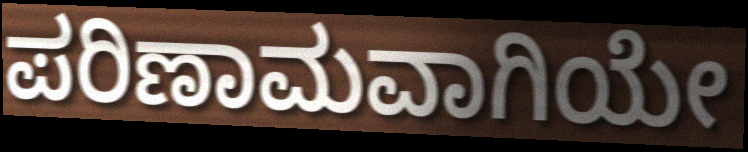
ಪರಿಣಾಮವಾಗಿಯೇ